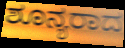
ಶೂನ್ಯರಾದ